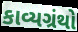
કાવ્યગ્રંથો